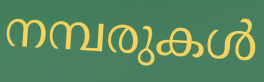
നമ്പരുകൾ